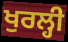
ਖੁਰਲ੍ਹੀ